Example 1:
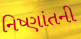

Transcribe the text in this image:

નિષ્ણાંતની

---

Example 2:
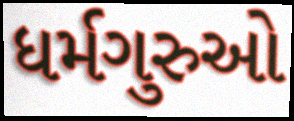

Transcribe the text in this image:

ધર્મગુરુઓ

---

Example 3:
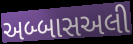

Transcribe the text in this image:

અબ્બાસઅલી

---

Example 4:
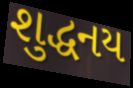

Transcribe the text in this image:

શુદ્ધનય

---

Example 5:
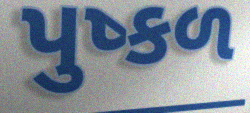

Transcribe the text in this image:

પુષ્કળ